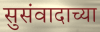
सुसंवादाच्या